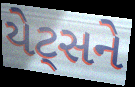
યેટ્સને